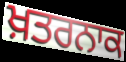
ਖ਼ਤਰਨਾਕ